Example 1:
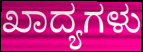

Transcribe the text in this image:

ಖಾದ್ಯಗಳು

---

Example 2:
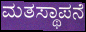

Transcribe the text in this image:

ಮತಸ್ಥಾಪನೆ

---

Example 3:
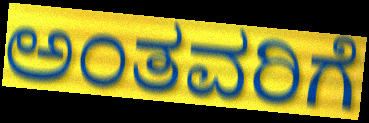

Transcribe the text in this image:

ಅಂತವರಿಗೆ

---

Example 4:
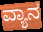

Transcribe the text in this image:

ವ್ಯಾನ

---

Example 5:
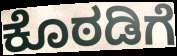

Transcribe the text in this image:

ಕೊಠಡಿಗೆ